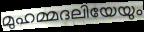
മുഹമ്മദലിയേയും